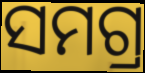
ସମଗ୍ର